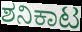
ಶನಿಕಾಟ